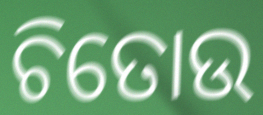
ଚିତୋଉ